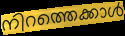
നിറത്തെക്കാൾ